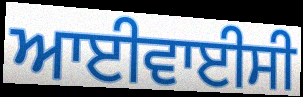
ਆਈਵਾਈਸੀ